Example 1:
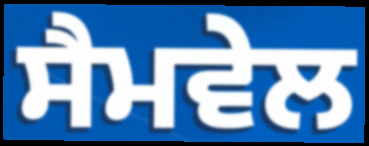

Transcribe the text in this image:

ਸੈਮਵੇਲ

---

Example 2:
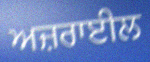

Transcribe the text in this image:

ਅਜ਼ਰਾਈਲ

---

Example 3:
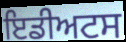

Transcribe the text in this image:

ਇਡੀਅਟਸ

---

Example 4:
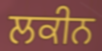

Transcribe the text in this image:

ਲਕੀਨ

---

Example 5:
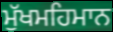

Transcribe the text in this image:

ਮੁੱਖਮਹਿਮਾਨ